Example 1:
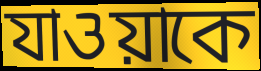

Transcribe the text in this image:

যাওয়াকে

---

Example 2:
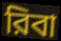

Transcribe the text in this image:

রিবা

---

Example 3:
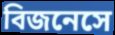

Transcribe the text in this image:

বিজনেসে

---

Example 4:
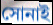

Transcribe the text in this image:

সোনাই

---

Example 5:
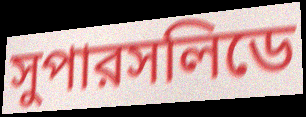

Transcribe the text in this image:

সুপারসলিডে